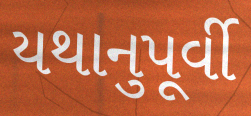
યથાનુપૂર્વી